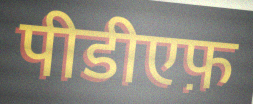
पीडीएफ़